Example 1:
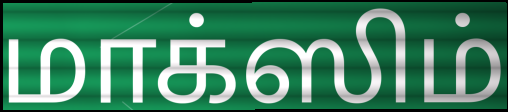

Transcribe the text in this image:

மாக்ஸிம்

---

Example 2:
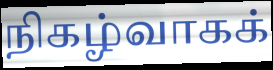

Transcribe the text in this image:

நிகழ்வாகக்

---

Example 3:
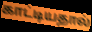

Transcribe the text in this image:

காட்டியதால்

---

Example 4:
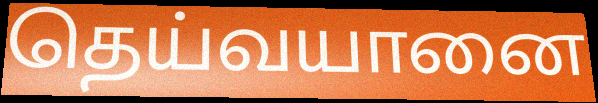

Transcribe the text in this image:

தெய்வயானை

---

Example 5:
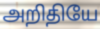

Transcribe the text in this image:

அறிதியே